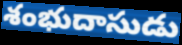
శంభుదాసుడు